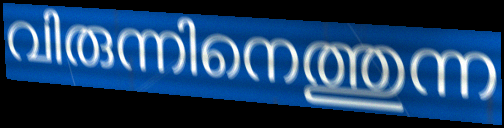
വിരുന്നിനെത്തുന്ന